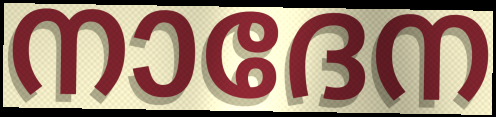
നാദേന